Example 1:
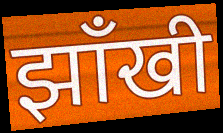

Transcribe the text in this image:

झाँखी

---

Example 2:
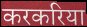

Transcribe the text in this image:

करकरिया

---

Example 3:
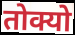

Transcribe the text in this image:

तोक्यो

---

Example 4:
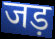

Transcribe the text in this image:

जड़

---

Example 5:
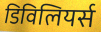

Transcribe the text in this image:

डिविलियर्स